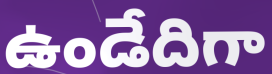
ఉండేదిగా